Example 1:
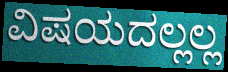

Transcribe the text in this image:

ವಿಷಯದಲ್ಲಲ್ಲ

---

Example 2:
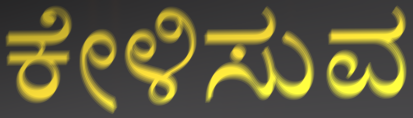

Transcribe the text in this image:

ಕೇಳಿಸುವ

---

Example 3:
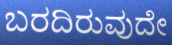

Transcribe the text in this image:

ಬರದಿರುವುದೇ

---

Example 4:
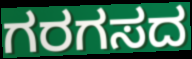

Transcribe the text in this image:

ಗರಗಸದ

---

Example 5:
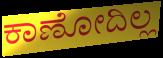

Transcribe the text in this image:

ಕಾಣೋದಿಲ್ಲ